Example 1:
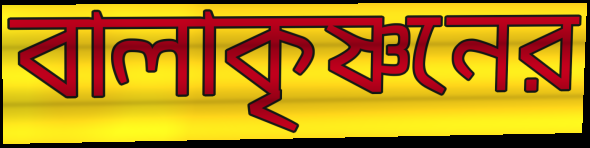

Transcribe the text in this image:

বালাকৃষ্ণনের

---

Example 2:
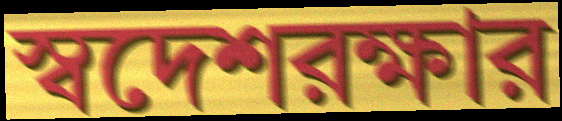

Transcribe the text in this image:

স্বদেশরক্ষার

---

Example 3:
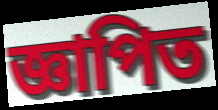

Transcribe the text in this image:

জ্ঞাপিত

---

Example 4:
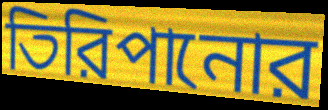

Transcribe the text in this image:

তিরিপানোর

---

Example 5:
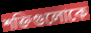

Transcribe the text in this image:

শক্তিগুলোকে